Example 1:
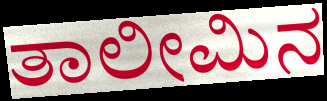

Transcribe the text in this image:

ತಾಲೀಮಿನ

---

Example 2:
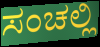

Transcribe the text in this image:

ಸಂಚಲ್ಲಿ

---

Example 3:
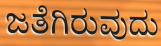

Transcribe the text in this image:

ಜತೆಗಿರುವುದು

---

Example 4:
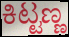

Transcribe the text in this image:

ಕಿಟ್ಟಣ್ಣ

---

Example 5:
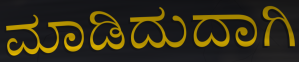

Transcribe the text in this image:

ಮಾಡಿದುದಾಗಿ